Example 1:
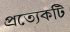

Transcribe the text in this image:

প্রত্যেকটি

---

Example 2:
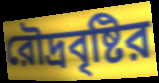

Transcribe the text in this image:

রৌদ্রবৃষ্টির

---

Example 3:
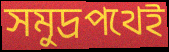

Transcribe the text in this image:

সমুদ্রপথেই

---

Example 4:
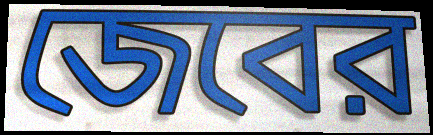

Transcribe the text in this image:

জেবের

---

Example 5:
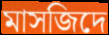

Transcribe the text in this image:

মাসজিদে